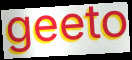
geeto